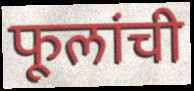
फूलांची